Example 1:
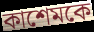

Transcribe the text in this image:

কাশেমকে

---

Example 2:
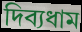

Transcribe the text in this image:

দিব্যধাম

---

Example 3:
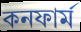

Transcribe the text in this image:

কনফার্ম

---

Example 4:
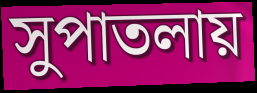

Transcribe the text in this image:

সুপাতলায়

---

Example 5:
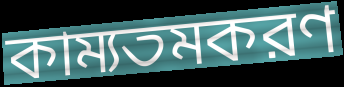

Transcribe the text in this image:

কাম্যতমকরণ